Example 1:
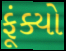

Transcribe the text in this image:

ફૂંક્યો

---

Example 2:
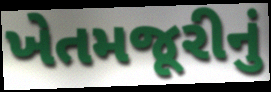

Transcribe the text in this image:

ખેતમજૂરીનું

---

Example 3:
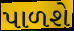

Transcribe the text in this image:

પાળશે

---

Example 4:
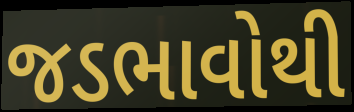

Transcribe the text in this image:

જડભાવોથી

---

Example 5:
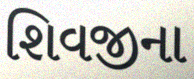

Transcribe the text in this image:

શિવજીના